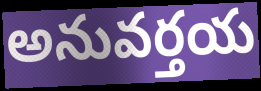
అనువర్తయ